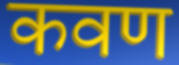
कवण